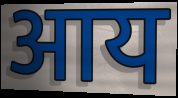
आय